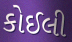
કોઈલી